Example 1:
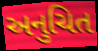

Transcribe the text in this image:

અનુચિત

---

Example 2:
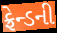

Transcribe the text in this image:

ફ્રેન્ડની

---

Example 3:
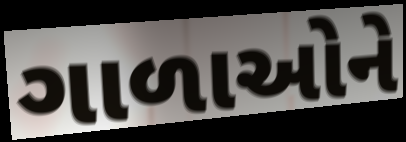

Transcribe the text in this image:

ગાળાઓને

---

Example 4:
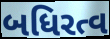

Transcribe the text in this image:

બધિરત્વ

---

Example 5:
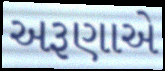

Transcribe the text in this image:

અરૂણાએ